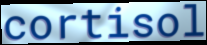
cortisol